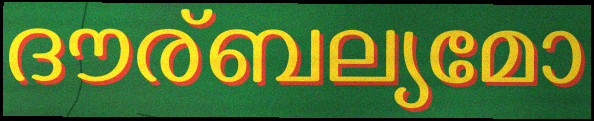
ദൗര്ബല്യമോ